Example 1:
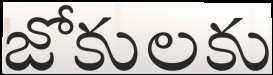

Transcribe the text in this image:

జోకులకు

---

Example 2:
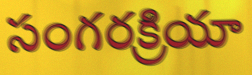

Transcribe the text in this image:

సంగరక్రియా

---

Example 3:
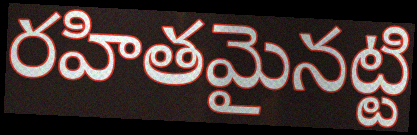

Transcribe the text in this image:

రహితమైనట్టి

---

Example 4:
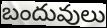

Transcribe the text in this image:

బందువులు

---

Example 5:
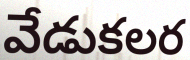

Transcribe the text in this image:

వేడుకలర